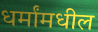
धर्मांमधील